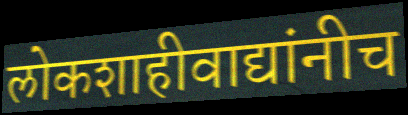
लोकशाहीवाद्यांनीच